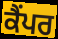
ਕੈਂਪਰ